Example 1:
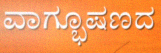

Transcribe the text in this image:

ವಾಗ್ಭೂಷಣದ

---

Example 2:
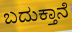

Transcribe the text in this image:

ಬದುಕ್ತಾನೆ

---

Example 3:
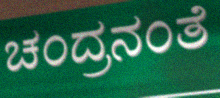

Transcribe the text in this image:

ಚಂದ್ರನಂತೆ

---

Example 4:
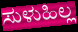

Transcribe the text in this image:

ಸುಳುಹಿಲ್ಲ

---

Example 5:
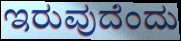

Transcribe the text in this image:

ಇರುವುದೆಂದು